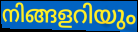
നിങ്ങളറിയും